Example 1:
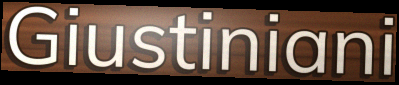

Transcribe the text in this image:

Giustiniani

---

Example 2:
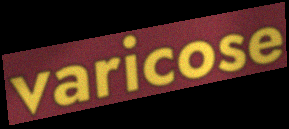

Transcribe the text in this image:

varicose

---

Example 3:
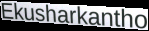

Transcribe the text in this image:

Ekusharkantho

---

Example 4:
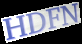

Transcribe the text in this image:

HDFN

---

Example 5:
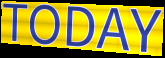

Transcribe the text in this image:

TODAY